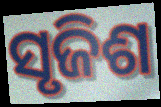
ସୃଜିଶ